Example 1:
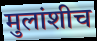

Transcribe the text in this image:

मुलांशीच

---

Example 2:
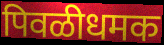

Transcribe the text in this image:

पिवळीधमक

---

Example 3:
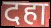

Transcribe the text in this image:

दहा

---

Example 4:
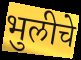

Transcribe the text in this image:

भुलीचे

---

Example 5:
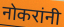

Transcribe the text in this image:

नोकरांनी